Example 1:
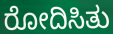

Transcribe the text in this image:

ರೋದಿಸಿತು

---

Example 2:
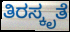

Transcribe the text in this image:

ತಿರಸ್ಕೃತೆ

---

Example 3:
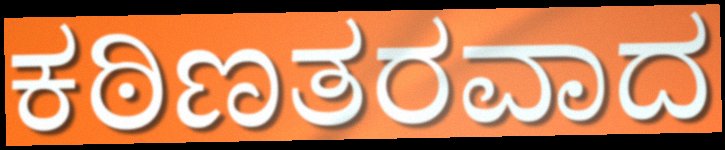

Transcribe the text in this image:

ಕಠಿಣತರವಾದ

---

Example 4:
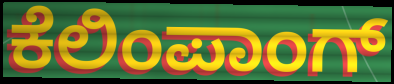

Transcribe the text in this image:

ಕೆಲಿಂಪಾಂಗ್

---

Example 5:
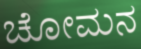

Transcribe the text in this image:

ಚೋಮನ